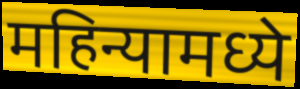
महिन्यामध्ये